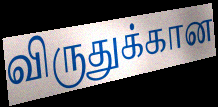
விருதுக்கான